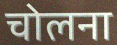
चोलना